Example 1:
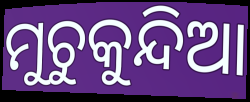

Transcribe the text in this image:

ମୁଚୁକୁନ୍ଦିଆ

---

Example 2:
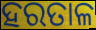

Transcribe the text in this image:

ହରତାଳ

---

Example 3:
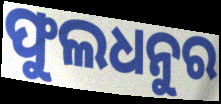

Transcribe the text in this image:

ଫୁଲଧନୁର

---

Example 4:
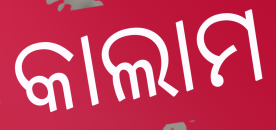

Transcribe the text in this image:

କାଲାମ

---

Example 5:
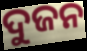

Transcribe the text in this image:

ଦୁଜନ